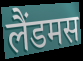
लैंडमस